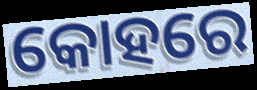
କୋହରେ